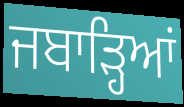
ਜਬਾੜ੍ਹਿਆਂ